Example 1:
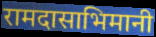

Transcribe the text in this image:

रामदासाभिमानी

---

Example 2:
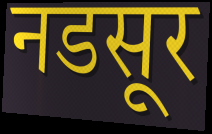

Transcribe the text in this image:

नडसूर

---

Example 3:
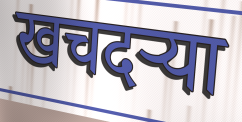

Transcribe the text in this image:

खचदऱ्या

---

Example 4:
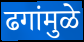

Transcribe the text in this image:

ढगांमुळे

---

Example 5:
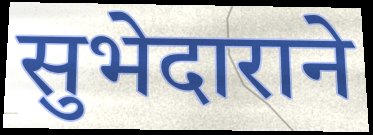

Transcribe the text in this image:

सुभेदाराने